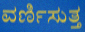
ವರ್ಣಿಸುತ್ತ